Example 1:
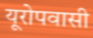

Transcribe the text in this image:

यूरोपवासी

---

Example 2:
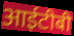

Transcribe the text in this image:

आईटीबी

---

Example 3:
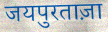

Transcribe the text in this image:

जयपुरताज़ा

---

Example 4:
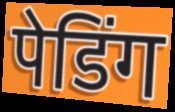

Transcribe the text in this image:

पेडिंग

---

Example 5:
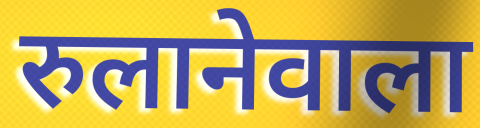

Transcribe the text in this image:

रुलानेवाला